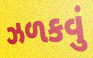
ઝળકવું